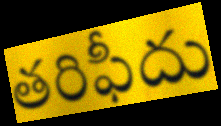
తరిఫీదు